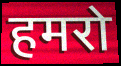
हमरो